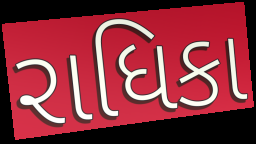
રાધિકા